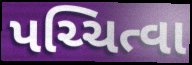
પચ્ચિત્વા